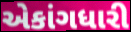
એકાંગધારી